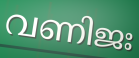
വണിജഃ